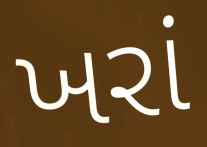
ખરાં